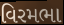
વિરમભા